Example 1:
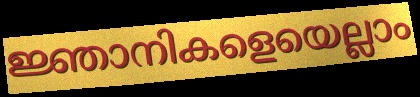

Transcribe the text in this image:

ജ്ഞാനികളെയെല്ലാം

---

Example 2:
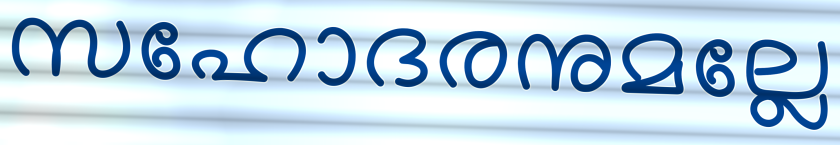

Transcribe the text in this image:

സഹോദരനുമല്ലേ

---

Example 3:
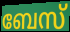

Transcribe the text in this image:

ബേസ്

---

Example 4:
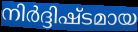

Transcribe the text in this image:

നിർദ്ദിഷ്ടമായ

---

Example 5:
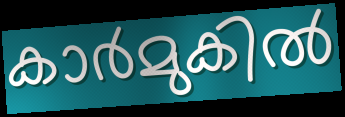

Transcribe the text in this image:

കാർമുകിൽ